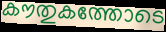
കൗതുകത്തോടെ